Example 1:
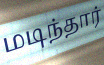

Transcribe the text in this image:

மடிந்தார்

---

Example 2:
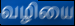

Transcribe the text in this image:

வழியை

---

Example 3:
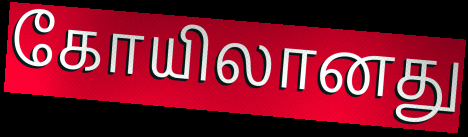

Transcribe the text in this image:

கோயிலானது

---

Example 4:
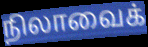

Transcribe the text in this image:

நிலாவைக்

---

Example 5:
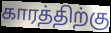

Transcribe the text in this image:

காரத்திற்கு